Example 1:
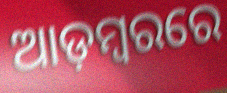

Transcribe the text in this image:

ଆଡ଼ମ୍ୱରରେ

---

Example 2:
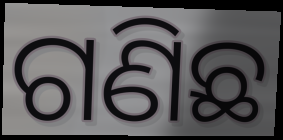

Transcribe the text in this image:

ଗଣିଛ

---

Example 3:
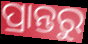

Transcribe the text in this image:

ପ୍ରାନ୍ତରୁ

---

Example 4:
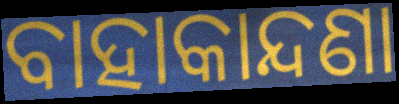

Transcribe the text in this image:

ବାହାକାନ୍ଦଣା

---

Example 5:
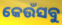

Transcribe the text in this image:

କେଉଁସବୁ